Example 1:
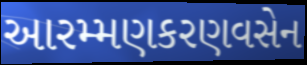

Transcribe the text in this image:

આરમ્મણકરણવસેન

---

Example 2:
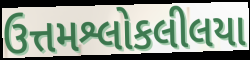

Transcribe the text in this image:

ઉત્તમશ્લોકલીલયા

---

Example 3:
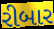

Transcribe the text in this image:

રીબાર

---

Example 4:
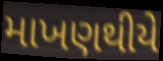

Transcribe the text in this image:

માખણથીયે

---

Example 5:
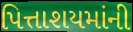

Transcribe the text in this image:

પિત્તાશયમાંની